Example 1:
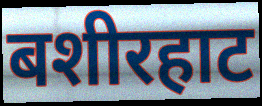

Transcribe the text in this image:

बशीरहाट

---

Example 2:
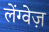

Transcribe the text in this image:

लेंग्वेज़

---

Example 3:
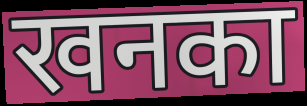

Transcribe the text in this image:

खनका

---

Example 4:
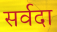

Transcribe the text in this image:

सर्वदा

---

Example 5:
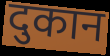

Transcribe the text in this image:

दुकान